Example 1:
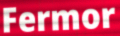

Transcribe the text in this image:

Fermor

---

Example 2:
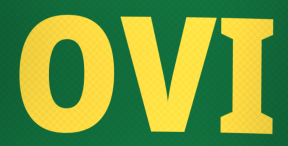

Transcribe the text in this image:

OVI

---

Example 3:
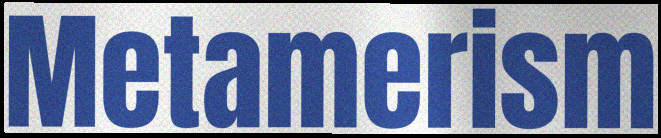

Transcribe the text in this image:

Metamerism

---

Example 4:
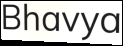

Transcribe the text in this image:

Bhavya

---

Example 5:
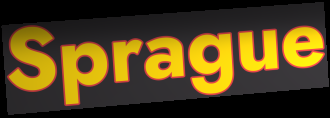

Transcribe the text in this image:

Sprague